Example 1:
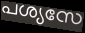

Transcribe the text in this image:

പശ്യസേ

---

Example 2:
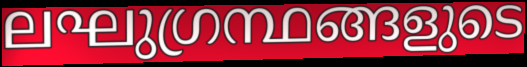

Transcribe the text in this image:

ലഘുഗ്രന്ഥങ്ങളുടെ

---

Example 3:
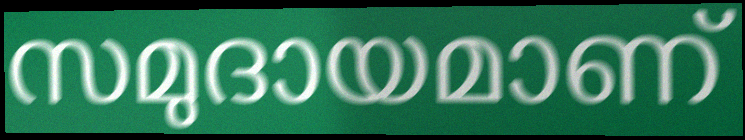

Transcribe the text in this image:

സമുദായമാണ്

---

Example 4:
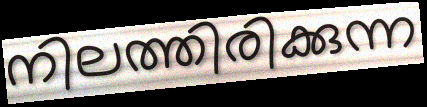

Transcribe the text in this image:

നിലത്തിരിക്കുന്ന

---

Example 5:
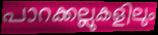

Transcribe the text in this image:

പാറക്കല്ലുകളിലും